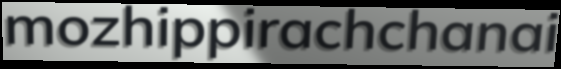
mozhippirachchanai